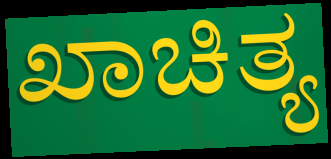
ಖಾಚಿತ್ಯ